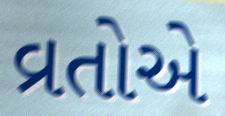
વ્રતોએ